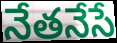
నేతనేసే